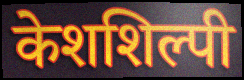
केशशिल्पी